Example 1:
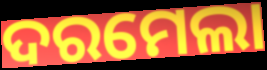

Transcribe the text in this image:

ଦରମେଲା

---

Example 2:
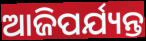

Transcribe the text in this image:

ଆଜିପର୍ଯ୍ୟନ୍ତ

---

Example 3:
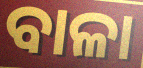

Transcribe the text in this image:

ବାଳା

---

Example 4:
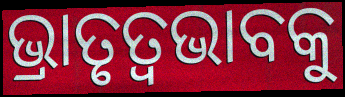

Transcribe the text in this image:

ଭ୍ରାତୃତ୍ୱଭାବକୁ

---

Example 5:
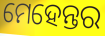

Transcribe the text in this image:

ମେହେନ୍ତର